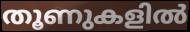
തൂണുകളിൽ